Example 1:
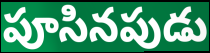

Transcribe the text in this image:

పూసినపుడు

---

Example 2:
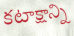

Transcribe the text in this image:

కటాక్షాన్ని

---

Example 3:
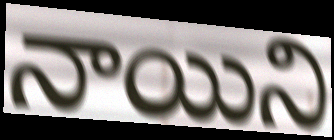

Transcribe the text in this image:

నాయిని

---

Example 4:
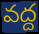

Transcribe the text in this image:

వద్ద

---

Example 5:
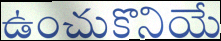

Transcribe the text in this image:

ఉంచుకొనియే